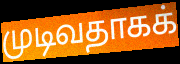
முடிவதாகக்